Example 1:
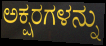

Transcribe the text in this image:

ಅಕ್ಷರಗಳನ್ನು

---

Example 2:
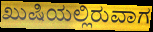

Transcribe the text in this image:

ಖುಷಿಯಲ್ಲಿರುವಾಗ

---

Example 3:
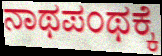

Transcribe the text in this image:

ನಾಥಪಂಥಕ್ಕೆ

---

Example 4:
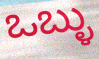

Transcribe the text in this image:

ಒಬ್ಳು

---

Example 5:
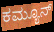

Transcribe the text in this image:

ಕಮ್ಯೂನ್